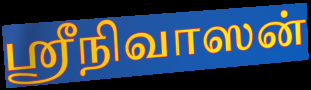
ஸ்ரீநிவாஸன்